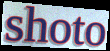
shoto